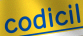
codicil